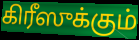
கிரீஸுக்கும்